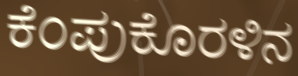
ಕೆಂಪುಕೊರಳಿನ